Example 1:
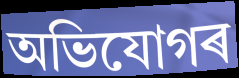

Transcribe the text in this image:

অভিযোগৰ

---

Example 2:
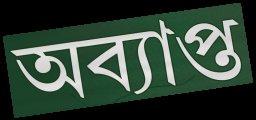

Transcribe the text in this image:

অব্যাপ্ত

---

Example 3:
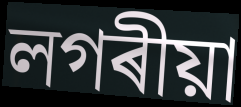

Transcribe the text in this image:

লগৰীয়া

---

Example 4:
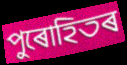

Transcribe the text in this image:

পুৰোহিতৰ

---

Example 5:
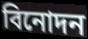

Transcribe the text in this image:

বিনোদন